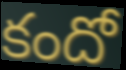
కందో